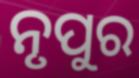
ନୃପୁର